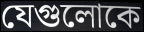
যেগুলোকে